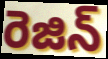
రెజిన్